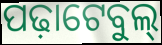
ପଢ଼ାଟେବୁଲ୍